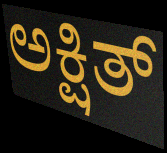
ಅಕ್ಷಿತ್